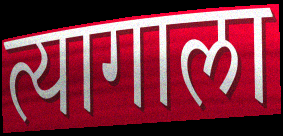
त्यागाला